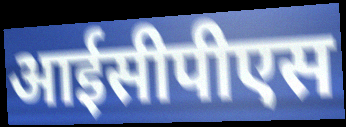
आईसीपीएस